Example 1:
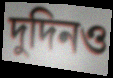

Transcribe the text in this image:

দুদিনও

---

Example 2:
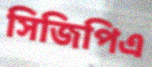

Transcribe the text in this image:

সিজিপিএ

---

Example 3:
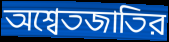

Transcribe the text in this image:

অশ্বেতজাতির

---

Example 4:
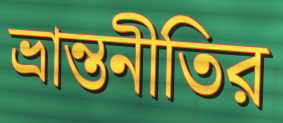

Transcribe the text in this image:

ভ্রান্তনীতির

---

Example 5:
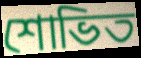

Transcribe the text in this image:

শোভিত